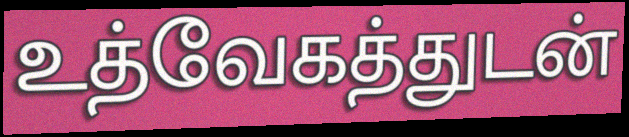
உத்வேகத்துடன்